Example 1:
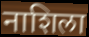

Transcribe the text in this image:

नाशिला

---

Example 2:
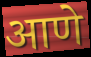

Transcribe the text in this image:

आणे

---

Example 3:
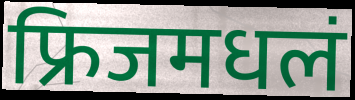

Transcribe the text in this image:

फ्रिजमधलं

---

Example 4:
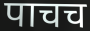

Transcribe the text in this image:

पाचच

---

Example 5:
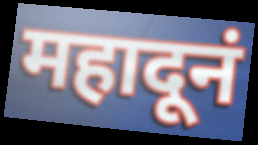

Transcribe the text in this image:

महादूनं